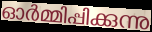
ഓർമ്മിപ്പിക്കുന്നു